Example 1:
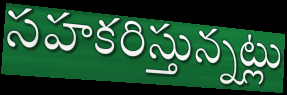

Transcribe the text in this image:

సహకరిస్తున్నట్లు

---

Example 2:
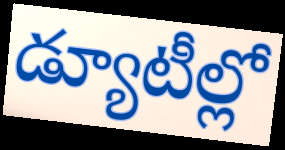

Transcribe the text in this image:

డ్యూటీల్లో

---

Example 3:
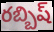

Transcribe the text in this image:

రబ్బిష్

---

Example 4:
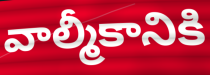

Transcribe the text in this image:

వాల్మీకానికి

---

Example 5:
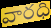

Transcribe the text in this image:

వారధి